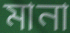
মানা